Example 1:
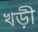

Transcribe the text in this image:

খড়ী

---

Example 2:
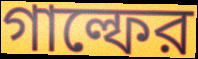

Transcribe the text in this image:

গাল্ফের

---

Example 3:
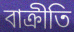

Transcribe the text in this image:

বাক্রীতি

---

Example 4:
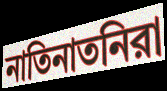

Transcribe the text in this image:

নাতিনাতনিরা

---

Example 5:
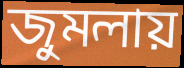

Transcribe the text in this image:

জুমলায়